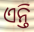
ଏନ୍ତି